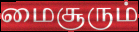
மைசூரும்